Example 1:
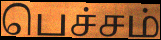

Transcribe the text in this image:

பெச்சம்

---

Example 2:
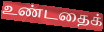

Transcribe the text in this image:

உண்டதைக்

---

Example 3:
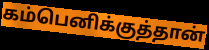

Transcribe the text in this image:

கம்பெனிக்குத்தான்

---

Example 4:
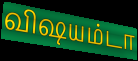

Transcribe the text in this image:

விஷயம்டா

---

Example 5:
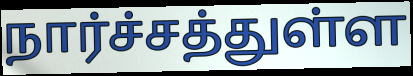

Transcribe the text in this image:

நார்ச்சத்துள்ள